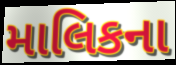
માલિકના